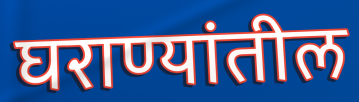
घराण्यांतील